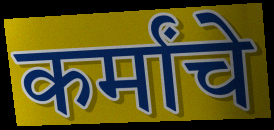
कर्मांचे